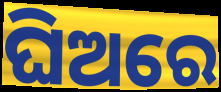
ଘିଅରେ